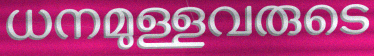
ധനമുള്ളവരുടെ